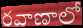
రవాణాలో